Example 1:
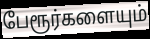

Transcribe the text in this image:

பேரூர்களையும்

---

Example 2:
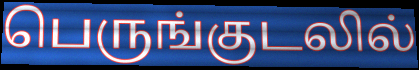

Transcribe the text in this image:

பெருங்குடலில்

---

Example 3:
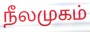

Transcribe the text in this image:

நீலமுகம்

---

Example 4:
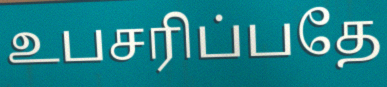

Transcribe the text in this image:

உபசரிப்பதே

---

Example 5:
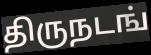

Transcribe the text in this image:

திருநடங்